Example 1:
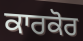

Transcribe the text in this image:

ਕਾਰਕੋਰ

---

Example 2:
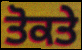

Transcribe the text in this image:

ਤੋਕਤੇ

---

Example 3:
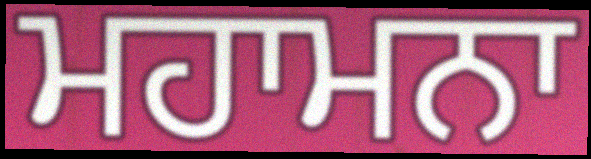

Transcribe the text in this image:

ਮਹਾਮਨਾ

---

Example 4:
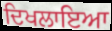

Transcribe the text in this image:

ਦਿਖਲਾਇਆ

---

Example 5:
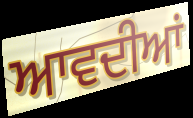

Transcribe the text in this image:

ਆਵਦੀਆਂ